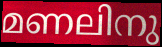
മണലിനു